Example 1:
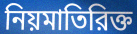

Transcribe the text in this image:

নিয়মাতিরিক্ত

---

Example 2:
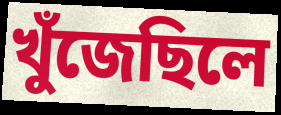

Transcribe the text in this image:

খুঁজেছিলে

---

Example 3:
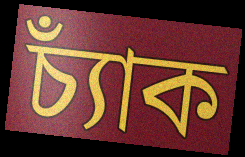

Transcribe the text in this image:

চ্যাঁক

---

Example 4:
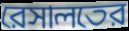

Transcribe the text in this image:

রেসালতের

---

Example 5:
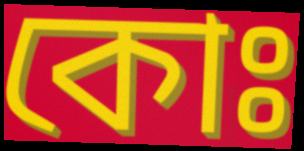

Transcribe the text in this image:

কোঃ